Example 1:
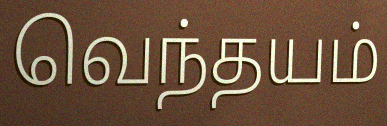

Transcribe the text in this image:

வெந்தயம்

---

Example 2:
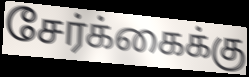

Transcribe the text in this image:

சேர்க்கைக்கு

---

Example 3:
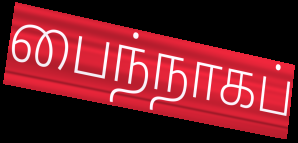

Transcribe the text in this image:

பைந்நாகப்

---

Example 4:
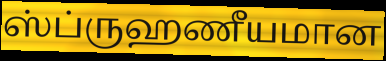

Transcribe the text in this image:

ஸ்ப்ருஹணீயமான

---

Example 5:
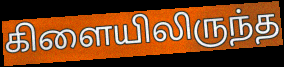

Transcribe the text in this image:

கிளையிலிருந்த